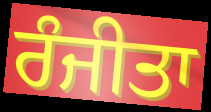
ਰੰਜੀਤਾ